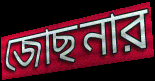
জোছনার